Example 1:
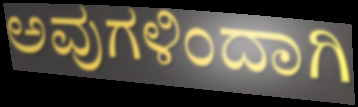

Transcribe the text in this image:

ಅವುಗಳಿಂದಾಗಿ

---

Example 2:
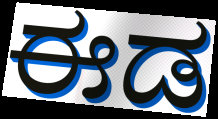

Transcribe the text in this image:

ಈಡ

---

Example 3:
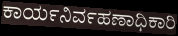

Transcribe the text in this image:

ಕಾರ್ಯನಿರ್ವಹಣಾಧಿಕಾರಿ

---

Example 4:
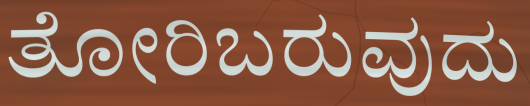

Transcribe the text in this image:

ತೋರಿಬರುವುದು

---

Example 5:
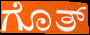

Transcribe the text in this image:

ಗೊತ್